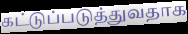
கட்டுப்படுத்துவதாக